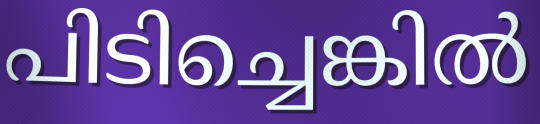
പിടിച്ചെങ്കിൽ